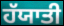
ਹੱਯਾਤੀ